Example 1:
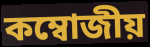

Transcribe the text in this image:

কম্বোজীয়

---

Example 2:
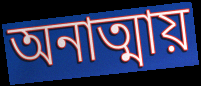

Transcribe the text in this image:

অনাত্মায়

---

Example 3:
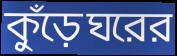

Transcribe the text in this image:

কুঁড়েঘরের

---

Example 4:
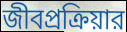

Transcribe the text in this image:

জীবপ্রক্রিয়ার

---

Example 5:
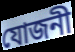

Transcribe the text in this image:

যোজনী